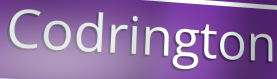
Codrington